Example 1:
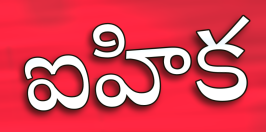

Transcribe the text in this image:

ఐహిక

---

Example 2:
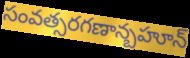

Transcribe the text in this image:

సంవత్సరగణాన్బహూన్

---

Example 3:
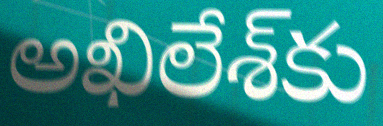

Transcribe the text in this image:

అఖిలేశ్‌కు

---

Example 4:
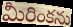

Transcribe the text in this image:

మీరింకను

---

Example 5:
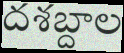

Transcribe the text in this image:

దశబ్దాల